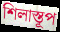
শিলাস্তূপ